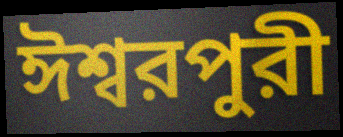
ঈশ্বরপুরী